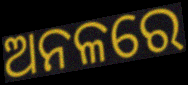
ଅନଳରେ